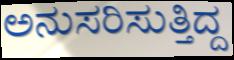
ಅನುಸರಿಸುತ್ತಿದ್ದ